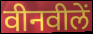
वीनवीलें